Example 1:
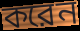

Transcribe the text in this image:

করেন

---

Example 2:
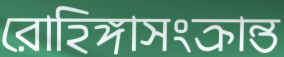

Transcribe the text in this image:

রোহিঙ্গাসংক্রান্ত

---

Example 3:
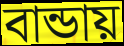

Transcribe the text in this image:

বান্ডায়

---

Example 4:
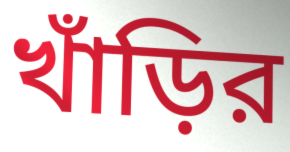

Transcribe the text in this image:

খাঁড়ির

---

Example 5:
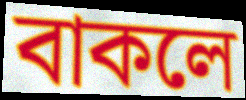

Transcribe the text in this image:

বাকলে